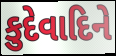
કુદેવાદિને